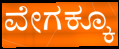
ವೇಗಕ್ಕೂ